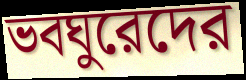
ভবঘুরেদের